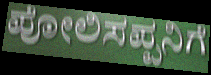
ಪೋಲಿಸಪ್ಪನಿಗೆ